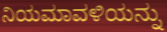
ನಿಯಮಾವಳಿಯನ್ನು